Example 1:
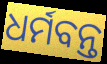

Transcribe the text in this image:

ଧର୍ମବନ୍ତ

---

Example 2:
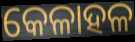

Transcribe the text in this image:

କେଳାହଳ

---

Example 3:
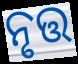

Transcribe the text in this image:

ନୃତ୍ତ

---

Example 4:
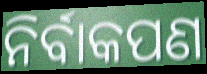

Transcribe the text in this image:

ନିର୍ବାକପଣ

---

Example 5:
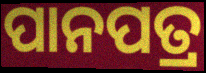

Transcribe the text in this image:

ପାନପତ୍ର